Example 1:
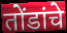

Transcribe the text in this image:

तोंडांचे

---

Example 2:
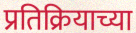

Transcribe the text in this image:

प्रतिक्रियाच्या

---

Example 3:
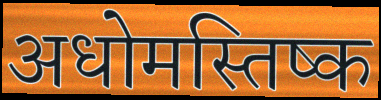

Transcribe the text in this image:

अधोमस्तिष्क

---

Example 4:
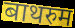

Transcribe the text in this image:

बाथरुम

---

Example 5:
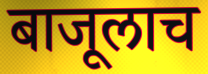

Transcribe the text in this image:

बाजूलाच